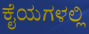
ಕೈಯಗಳಲ್ಲಿ